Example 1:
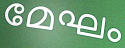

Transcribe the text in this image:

മേഘം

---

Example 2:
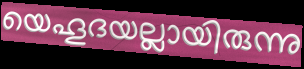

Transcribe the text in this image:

യെഹൂദയല്ലായിരുന്നു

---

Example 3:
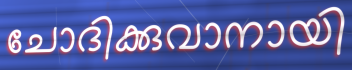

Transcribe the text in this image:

ചോദിക്കുവാനായി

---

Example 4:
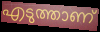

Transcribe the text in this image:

എടുത്താണ്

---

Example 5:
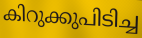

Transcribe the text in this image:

കിറുക്കുപിടിച്ച